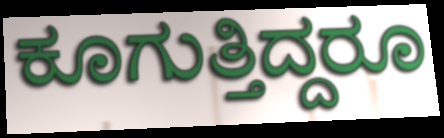
ಕೂಗುತ್ತಿದ್ದರೂ